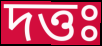
দত্তঃ